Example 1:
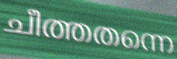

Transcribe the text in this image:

ചീത്തതന്നെ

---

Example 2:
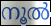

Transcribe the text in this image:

നൂൽ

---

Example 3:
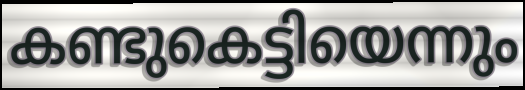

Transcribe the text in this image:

കണ്ടുകെട്ടിയെന്നും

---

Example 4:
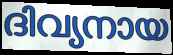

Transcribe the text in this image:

ദിവ്യനായ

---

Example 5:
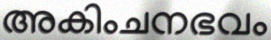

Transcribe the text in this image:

അകിംചനഭവം